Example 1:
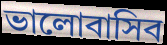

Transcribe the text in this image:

ভালোবাসিব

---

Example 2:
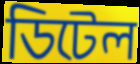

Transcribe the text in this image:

ডিটেল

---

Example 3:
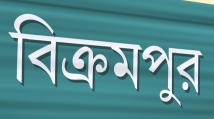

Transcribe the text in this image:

বিক্রমপুর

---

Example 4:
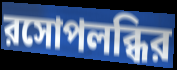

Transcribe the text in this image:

রসোপলব্ধির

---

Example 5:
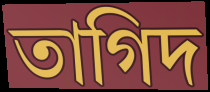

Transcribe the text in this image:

তাগিদ